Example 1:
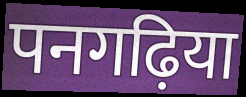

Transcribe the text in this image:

पनगढ़िया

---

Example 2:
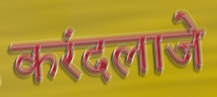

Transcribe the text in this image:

करंदलाजे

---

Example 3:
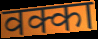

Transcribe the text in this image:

वक्का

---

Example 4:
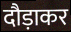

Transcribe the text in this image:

दौड़ाकर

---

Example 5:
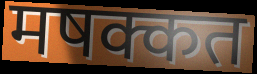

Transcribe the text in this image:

मषक्कत